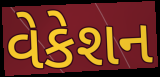
વેકેશન